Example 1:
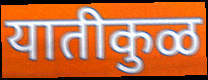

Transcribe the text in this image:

यातीकुळ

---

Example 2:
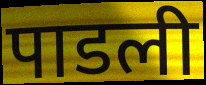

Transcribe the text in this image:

पाडली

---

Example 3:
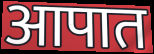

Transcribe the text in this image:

आपात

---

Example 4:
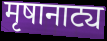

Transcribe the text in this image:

मृषानाट्य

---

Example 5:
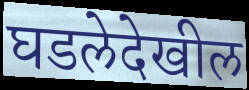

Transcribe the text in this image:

घडलेदेखील